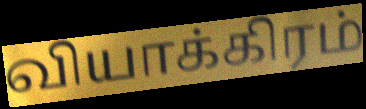
வியாக்கிரம்